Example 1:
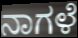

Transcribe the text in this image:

ನಾಗಳೆ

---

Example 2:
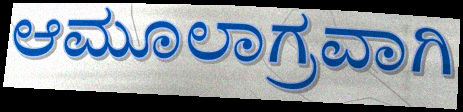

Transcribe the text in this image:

ಆಮೂಲಾಗ್ರವಾಗಿ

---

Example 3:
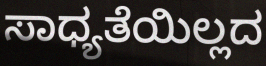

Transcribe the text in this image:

ಸಾಧ್ಯತೆಯಿಲ್ಲದ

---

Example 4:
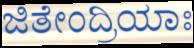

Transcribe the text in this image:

ಜಿತೇಂದ್ರಿಯಾಃ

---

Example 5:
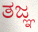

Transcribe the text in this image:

ತಜ್ಞ